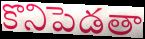
కొనిపెడతా